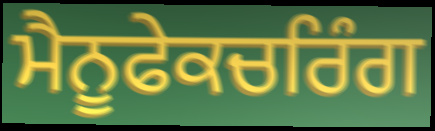
ਮੈਨੂਫੇਕਚਰਿੰਗ